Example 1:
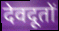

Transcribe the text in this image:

देवदूतों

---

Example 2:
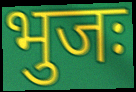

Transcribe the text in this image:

भुजः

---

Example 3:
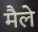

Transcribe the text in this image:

मैले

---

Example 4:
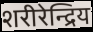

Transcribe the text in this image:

शरीरेन्द्रिय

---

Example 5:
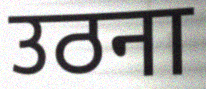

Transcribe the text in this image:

उठना